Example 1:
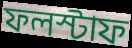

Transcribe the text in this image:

ফলস্টাফ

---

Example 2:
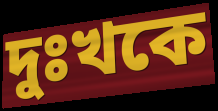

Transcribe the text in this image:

দুঃখকে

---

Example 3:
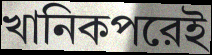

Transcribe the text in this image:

খানিকপরেই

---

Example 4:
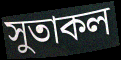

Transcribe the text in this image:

সুতাকল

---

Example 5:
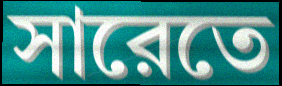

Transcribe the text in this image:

সারেতে